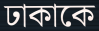
ঢাকাকে